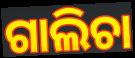
ଗାଲିଚା